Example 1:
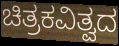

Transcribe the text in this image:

ಚಿತ್ರಕವಿತ್ವದ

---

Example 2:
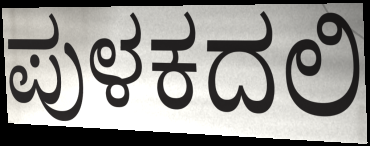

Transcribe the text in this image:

ಪುಳಕದಲಿ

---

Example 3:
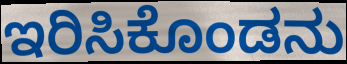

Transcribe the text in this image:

ಇರಿಸಿಕೊಂಡನು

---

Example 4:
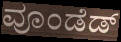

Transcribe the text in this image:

ವೂಂಡೆಡ್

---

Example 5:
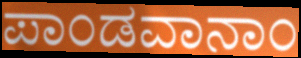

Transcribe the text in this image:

ಪಾಂಡವಾನಾಂ